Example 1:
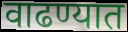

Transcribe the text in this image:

वाढण्यात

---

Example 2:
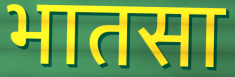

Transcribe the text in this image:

भातसा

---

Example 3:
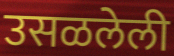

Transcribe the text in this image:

उसळलेली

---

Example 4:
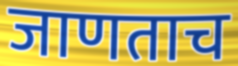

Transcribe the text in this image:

जाणताच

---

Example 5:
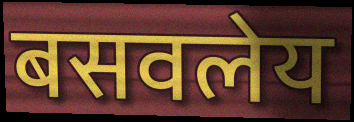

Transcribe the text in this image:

बसवलेय